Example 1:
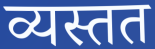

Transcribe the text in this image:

व्यस्तत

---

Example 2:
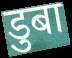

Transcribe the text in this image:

डुबा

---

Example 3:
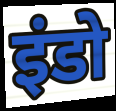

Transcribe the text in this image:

इंडो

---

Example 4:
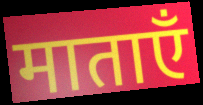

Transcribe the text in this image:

माताएँ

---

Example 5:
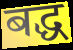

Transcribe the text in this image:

बद्ध